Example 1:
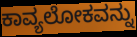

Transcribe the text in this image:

ಕಾವ್ಯಲೋಕವನ್ನು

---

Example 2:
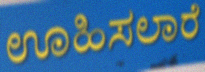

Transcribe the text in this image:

ಊಹಿಸಲಾರೆ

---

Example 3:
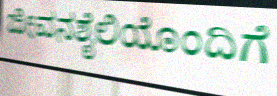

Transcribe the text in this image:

ಜೀವನಶೈಲಿಯೊಂದಿಗೆ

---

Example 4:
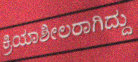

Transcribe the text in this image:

ಕ್ರಿಯಾಶೀಲರಾಗಿದ್ದು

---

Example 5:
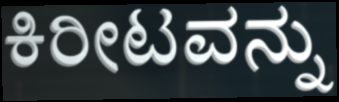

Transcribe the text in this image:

ಕಿರೀಟವನ್ನು